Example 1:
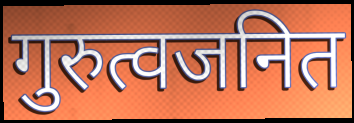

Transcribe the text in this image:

गुरुत्वजनित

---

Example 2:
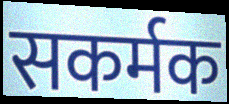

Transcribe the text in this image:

सकर्मक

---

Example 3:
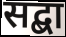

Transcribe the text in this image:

सद्बा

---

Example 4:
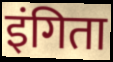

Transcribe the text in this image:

इंगिता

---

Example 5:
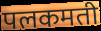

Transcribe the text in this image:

पलकमती